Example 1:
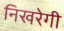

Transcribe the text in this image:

निखरेगी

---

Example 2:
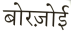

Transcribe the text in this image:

बोरज़ोई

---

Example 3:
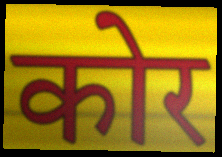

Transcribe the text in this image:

कोर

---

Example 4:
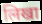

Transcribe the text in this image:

लिखा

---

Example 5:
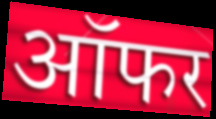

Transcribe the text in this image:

ऑफर